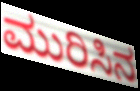
ಮುರಿಸಿನ